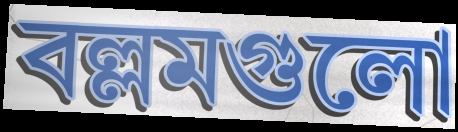
বল্লমগুলো